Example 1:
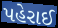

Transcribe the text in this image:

પહેરાઈ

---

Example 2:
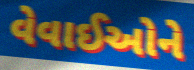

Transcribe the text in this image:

વેવાઈઓને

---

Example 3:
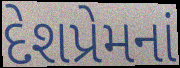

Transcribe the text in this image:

દેશપ્રેમનાં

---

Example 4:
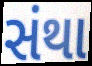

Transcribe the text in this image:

સંથા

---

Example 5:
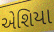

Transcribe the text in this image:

એશિયા